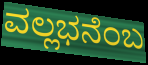
ವಲ್ಲಭನೆಂಬ